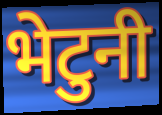
भेटुनी